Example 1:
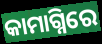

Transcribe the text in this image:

କାମାଗ୍ନିରେ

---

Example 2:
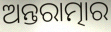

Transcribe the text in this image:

ଅନ୍ତରାତ୍ମାର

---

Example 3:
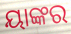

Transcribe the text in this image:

ୟାଙ୍କର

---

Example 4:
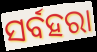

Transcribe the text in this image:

ସର୍ବହରା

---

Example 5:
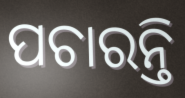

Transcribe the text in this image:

ପଚାରନ୍ତି